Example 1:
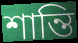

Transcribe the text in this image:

শান্তি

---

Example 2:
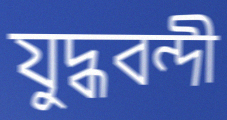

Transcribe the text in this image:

যুদ্ধবন্দী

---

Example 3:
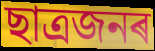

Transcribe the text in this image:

ছাত্ৰজনৰ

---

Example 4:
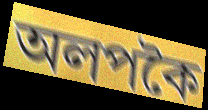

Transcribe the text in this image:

অলপকৈ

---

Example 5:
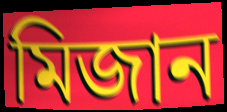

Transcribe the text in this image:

মিজান